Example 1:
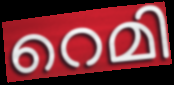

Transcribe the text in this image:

റെമി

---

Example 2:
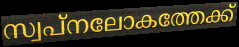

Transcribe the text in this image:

സ്വപ്നലോകത്തേക്ക്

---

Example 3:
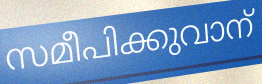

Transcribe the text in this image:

സമീപിക്കുവാന്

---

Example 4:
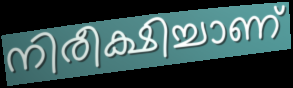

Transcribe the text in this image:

നിരീക്ഷിച്ചാണ്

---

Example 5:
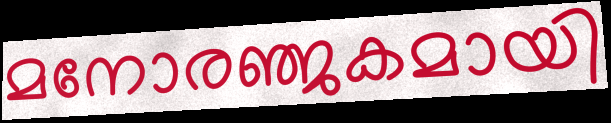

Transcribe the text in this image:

മനോരഞ്ജകമായി